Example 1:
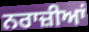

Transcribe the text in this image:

ਨਰਾਜ਼ੀਆਂ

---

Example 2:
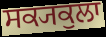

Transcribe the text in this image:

ਸਕ੍ਯਕੁਲਾ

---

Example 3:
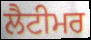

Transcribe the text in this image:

ਲੈਟੀਮਰ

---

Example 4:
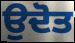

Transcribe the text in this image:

ਉਦੋਤ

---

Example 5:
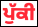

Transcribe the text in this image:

ਪੁੱਕੀ